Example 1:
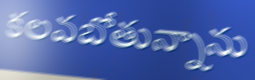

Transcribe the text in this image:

కలవబోతున్నాను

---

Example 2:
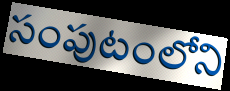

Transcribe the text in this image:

సంపుటంలోని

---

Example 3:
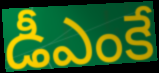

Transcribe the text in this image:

డీఎంకే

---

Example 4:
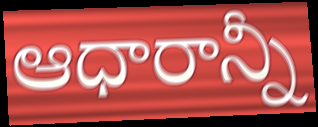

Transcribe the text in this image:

ఆధారాన్నీ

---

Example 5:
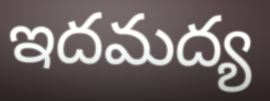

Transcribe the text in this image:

ఇదమద్య